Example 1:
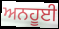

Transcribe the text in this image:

ਅਨਹੂਈ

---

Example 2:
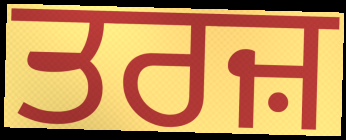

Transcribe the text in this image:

ਤਰਜ਼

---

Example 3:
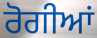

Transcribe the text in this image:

ਰੋਗੀਆਂ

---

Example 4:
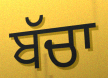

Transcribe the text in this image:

ਬੱਚਾ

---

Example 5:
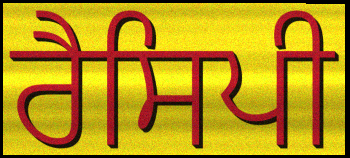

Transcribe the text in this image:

ਰੈਸਿਪੀ